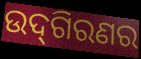
ଉଦ୍‌ଗିରଣର